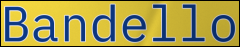
Bandello